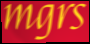
mgrs